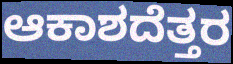
ಆಕಾಶದೆತ್ತರ